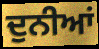
ਦੁਨੀਆਂ